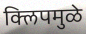
क्लिपमुळे